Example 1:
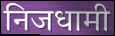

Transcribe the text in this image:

निजधामी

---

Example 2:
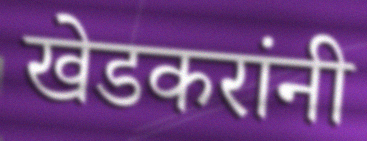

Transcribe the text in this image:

खेडकरांनी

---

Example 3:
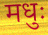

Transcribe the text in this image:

मधुः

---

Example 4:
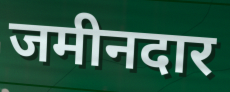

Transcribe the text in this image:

जमीनदार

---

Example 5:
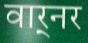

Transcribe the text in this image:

वार्नर